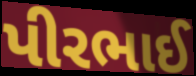
પીરભાઈ